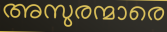
അസുരന്മാരെ